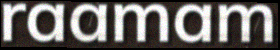
raamam